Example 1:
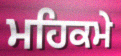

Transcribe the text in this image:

ਮਹਿਕਮੇ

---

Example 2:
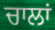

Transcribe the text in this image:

ਚਾਲਾਂ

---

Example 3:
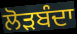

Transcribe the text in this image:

ਲੋੜਬੰਦਾ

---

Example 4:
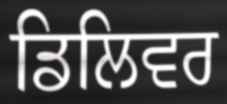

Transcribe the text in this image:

ਡਿਲਿਵਰ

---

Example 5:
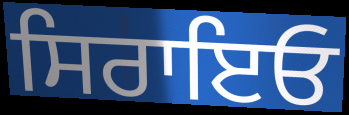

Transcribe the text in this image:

ਸਿਰਾਇਓ